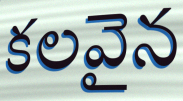
కలవైన